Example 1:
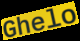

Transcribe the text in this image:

Ghelo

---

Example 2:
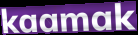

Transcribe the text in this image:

kaamak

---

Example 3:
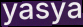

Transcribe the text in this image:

yasya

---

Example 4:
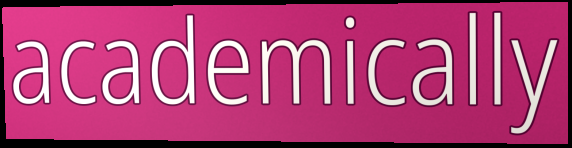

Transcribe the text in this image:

academically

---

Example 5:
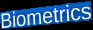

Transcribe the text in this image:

Biometrics